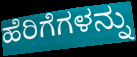
ಹೆರಿಗೆಗಳನ್ನು